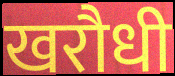
खरौधी